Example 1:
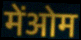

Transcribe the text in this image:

मेंओम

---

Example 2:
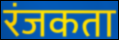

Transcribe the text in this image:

रंजकता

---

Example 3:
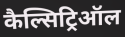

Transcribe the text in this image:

कैल्सिट्रिऑल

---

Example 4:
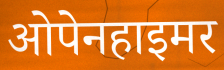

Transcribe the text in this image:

ओपेनहाइमर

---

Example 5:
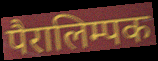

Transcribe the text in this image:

पैरालिम्पक